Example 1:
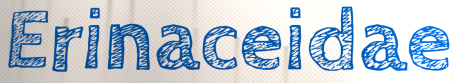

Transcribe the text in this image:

Erinaceidae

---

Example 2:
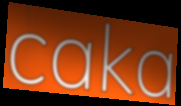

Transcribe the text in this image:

caka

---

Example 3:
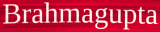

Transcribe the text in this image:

Brahmagupta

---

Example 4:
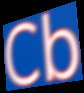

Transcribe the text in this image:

Cb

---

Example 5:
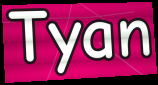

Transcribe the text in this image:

Tyan